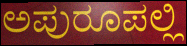
ಅಪುರೂಪಲ್ಲಿ